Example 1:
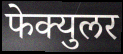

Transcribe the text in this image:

फेक्युलर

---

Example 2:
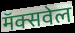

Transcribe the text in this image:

मॅक्सवेल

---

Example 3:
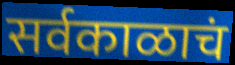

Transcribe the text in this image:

सर्वकाळाचं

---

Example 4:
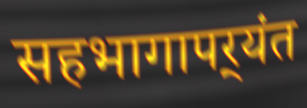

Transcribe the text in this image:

सहभागापर्यंत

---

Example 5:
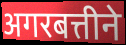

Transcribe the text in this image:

अगरबत्तीने